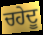
ਚਹੇਦੂ